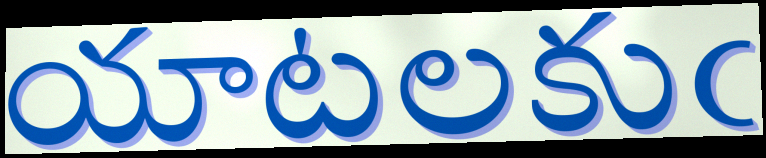
యాటలకుఁ